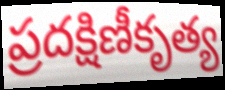
ప్రదక్షిణీకృత్య